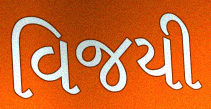
વિજયી